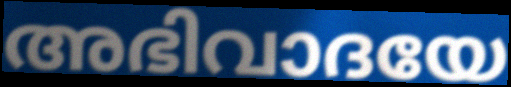
അഭിവാദയേ